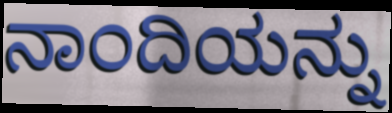
ನಾಂದಿಯನ್ನು